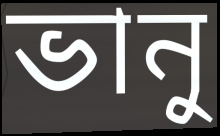
ভানু